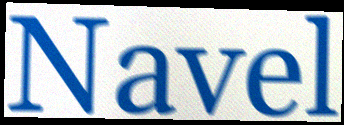
Navel